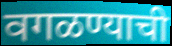
वगळण्याची